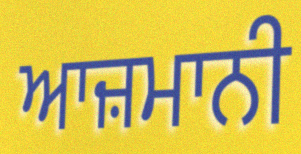
ਆਜ਼ਮਾਨੀ